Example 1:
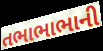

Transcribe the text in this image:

તભાભાભાની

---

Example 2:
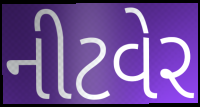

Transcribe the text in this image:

નીટવેર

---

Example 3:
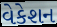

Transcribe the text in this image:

વેકેશન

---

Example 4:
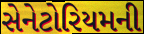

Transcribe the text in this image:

સેનેટોરિયમની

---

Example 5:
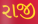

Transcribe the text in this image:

રાજી